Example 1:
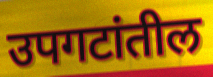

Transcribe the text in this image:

उपगटांतील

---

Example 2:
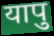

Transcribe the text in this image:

यापु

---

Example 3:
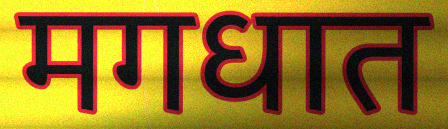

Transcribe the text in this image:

मगधात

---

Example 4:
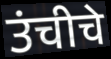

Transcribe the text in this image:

उंचीचे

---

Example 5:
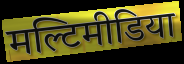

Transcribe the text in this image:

मल्टिमीडिया